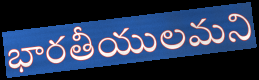
భారతీయులమని